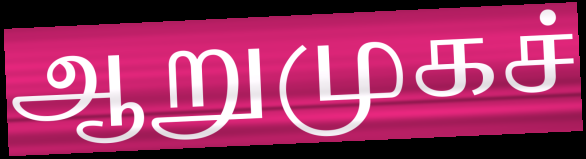
ஆறுமுகச்